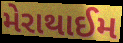
મેરાથાઈમ